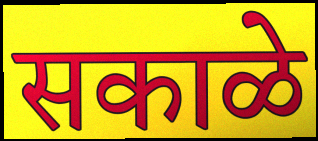
सकाळे